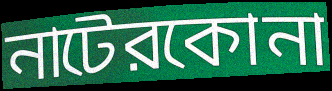
নাটেরকোনা